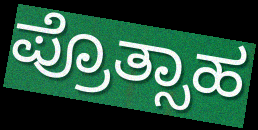
ಪ್ರೊತ್ಸಾಹ